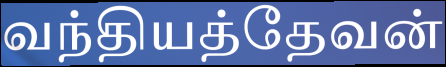
வந்தியத்தேவன்